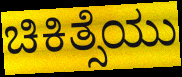
ಚಿಕಿತ್ಸೆಯು